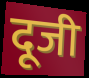
दूजी